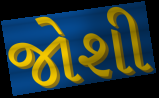
જોશી